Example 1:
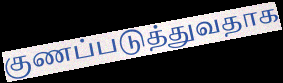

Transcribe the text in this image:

குணப்படுத்துவதாக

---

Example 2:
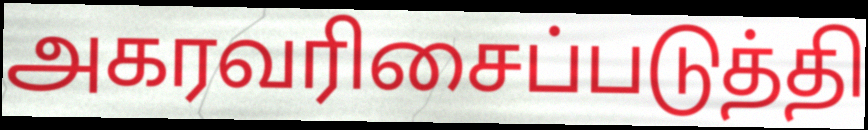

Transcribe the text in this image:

அகரவரிசைப்படுத்தி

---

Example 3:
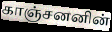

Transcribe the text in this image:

காஞ்சனனின்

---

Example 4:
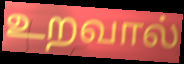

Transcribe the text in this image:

உறவால்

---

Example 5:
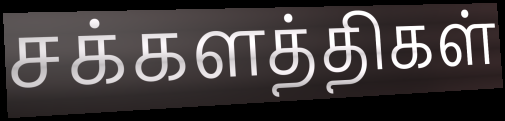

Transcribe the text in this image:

சக்களத்திகள்